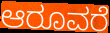
ಆರೂವರೆ